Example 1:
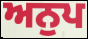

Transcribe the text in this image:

ਅਨੁਪ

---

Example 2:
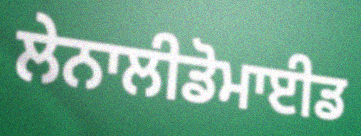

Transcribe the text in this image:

ਲੇਨਾਲੀਡੋਮਾਈਡ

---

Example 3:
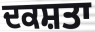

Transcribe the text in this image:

ਦਕਸ਼ਤਾ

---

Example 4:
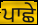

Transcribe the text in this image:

ਪਾਛੇ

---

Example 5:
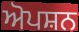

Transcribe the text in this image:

ਅੋਪਸ਼ਨ